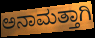
ಅನಾಮತ್ತಾಗಿ